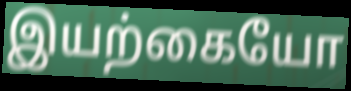
இயற்கையோ